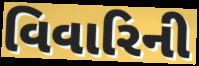
વિવારિની